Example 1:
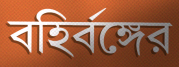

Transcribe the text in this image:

বহির্বঙ্গের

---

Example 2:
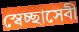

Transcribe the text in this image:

স্বেচ্ছাসেবী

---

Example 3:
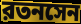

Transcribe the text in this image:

রতনসেন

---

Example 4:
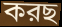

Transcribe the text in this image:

করছ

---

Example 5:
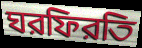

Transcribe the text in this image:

ঘরফিরতি